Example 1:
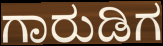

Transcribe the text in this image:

ಗಾರುಡಿಗ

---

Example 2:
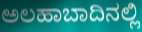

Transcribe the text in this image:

ಅಲಹಾಬಾದಿನಲ್ಲಿ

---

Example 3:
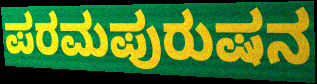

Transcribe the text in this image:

ಪರಮಪುರುಷನ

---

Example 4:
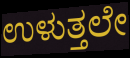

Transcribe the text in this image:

ಉಳುತ್ತಲೇ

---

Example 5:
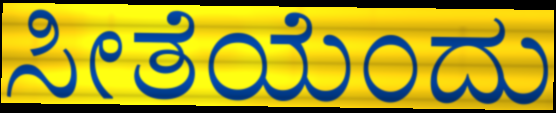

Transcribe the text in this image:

ಸೀತೆಯೆಂದು